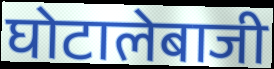
घोटालेबाजी